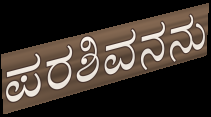
ಪರಶಿವನನು